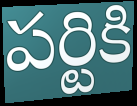
పర్టికి